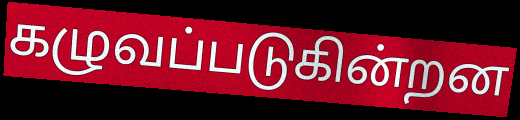
கழுவப்படுகின்றன